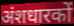
अंशधारकों